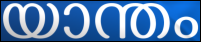
യാന്തം